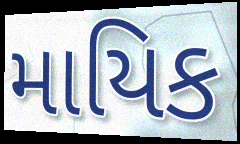
માયિક